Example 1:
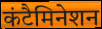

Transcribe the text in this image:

कंटैमिनेशन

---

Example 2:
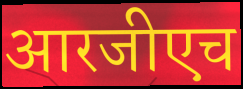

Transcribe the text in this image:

आरजीएच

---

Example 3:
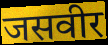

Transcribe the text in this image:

जसवीर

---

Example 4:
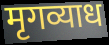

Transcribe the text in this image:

मृगव्याध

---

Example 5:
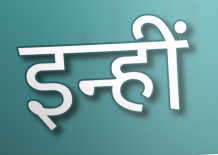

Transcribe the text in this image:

इन्हीं